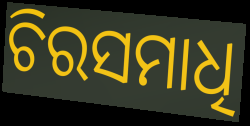
ଚିରସମାଧି